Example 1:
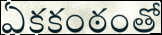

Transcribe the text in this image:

ఏకకంఠంతో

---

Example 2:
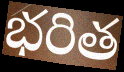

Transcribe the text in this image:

భరిత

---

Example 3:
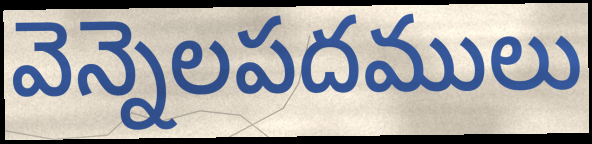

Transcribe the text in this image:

వెన్నెలపదములు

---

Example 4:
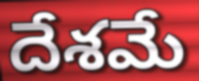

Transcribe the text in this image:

దేశమే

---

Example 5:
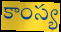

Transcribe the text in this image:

కాంస్య